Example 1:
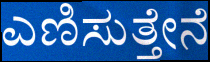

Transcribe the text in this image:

ಎಣಿಸುತ್ತೇನೆ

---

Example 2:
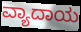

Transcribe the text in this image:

ವ್ಯಾದಾಯ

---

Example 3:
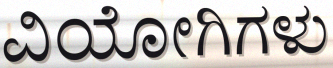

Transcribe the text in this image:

ವಿಯೋಗಿಗಳು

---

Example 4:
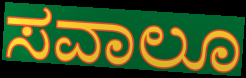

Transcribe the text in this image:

ಸವಾಲೂ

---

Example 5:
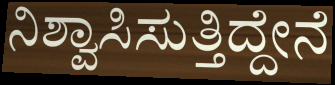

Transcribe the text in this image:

ನಿಶ್ವಾಸಿಸುತ್ತಿದ್ದೇನೆ